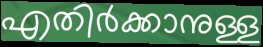
എതിർക്കാനുള്ള